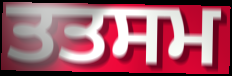
ਤਤਸਮ